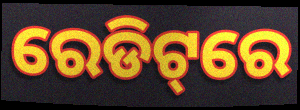
ରେଡିଟ୍‌ରେ